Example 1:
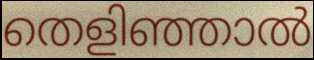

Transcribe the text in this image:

തെളിഞ്ഞാൽ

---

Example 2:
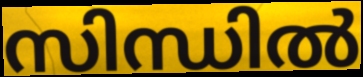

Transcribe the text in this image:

സിന്ധിൽ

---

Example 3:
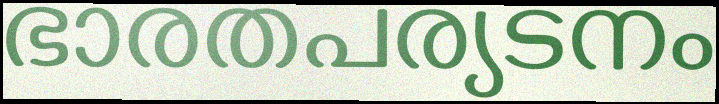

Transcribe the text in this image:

ഭാരതപര്യടനം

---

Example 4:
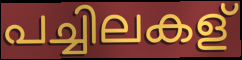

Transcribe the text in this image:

പച്ചിലകള്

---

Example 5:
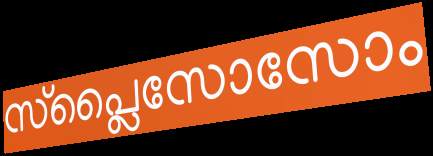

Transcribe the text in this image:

സ്പ്ലൈസോസോം